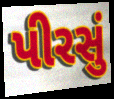
પીરસું